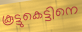
കൂട്ടുകെട്ടിനെ